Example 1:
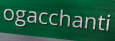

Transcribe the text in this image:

ogacchanti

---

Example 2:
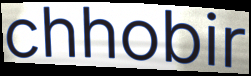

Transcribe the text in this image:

chhobir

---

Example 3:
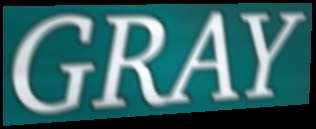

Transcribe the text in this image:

GRAY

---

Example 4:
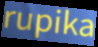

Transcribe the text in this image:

rupika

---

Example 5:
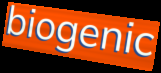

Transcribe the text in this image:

biogenic